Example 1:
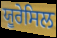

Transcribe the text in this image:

ਯੂਰੇਸਿਲ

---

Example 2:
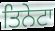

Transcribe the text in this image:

ਤਿਨੇਟਾ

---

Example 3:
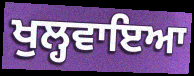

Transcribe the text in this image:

ਖੁਲ੍ਹਵਾਇਆ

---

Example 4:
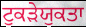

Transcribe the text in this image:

ਟੁਕੜੇਯੁਕਤਾ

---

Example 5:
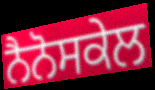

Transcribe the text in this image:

ਨੈਨੋਸਕੇਲ